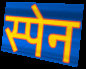
स्पेन